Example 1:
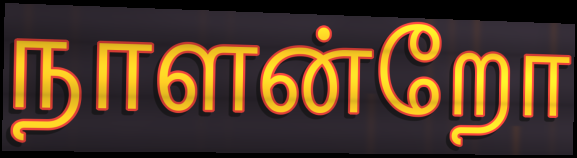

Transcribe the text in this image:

நாளன்றோ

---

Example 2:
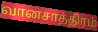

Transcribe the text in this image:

வானசாத்திரம்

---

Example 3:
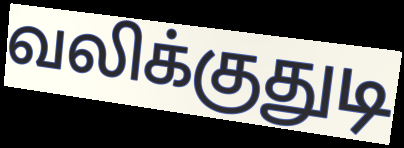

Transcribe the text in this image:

வலிக்குதுடி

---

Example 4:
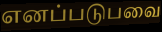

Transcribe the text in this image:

எனப்படுபவை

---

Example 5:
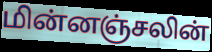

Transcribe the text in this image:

மின்னஞ்சலின்